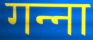
गन्‍ना